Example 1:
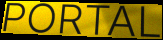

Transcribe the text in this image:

PORTAL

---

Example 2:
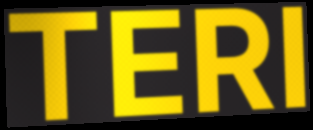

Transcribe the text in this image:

TERI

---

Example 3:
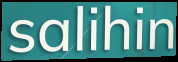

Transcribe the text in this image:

salihin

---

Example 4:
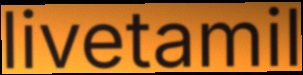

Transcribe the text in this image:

livetamil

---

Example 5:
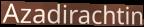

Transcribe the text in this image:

Azadirachtin